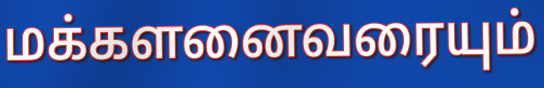
மக்களனைவரையும்